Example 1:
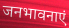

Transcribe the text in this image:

जनभावनाएं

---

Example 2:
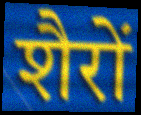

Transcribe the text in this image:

शैरों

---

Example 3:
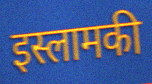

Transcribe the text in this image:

इस्लामकी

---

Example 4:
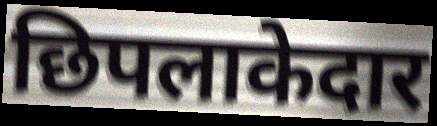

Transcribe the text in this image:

छिपलाकेदार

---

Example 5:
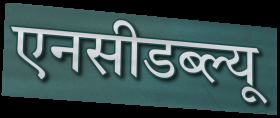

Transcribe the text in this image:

एनसीडब्ल्यू